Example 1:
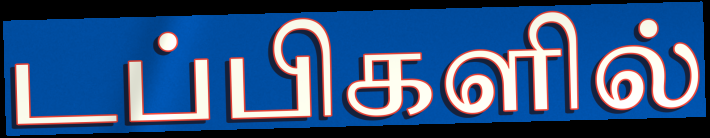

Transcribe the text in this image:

டப்பிகளில்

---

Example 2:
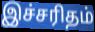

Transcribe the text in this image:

இச்சரிதம்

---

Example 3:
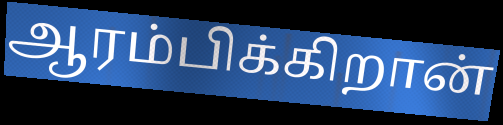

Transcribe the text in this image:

ஆரம்பிக்கிறான்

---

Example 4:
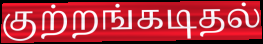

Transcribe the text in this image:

குற்றங்கடிதல்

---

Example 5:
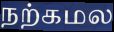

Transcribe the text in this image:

நற்கமல